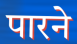
पारने